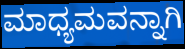
ಮಾಧ್ಯಮವನ್ನಾಗಿ